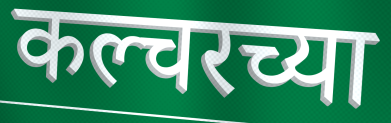
कल्चरच्या